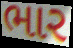
ભાર